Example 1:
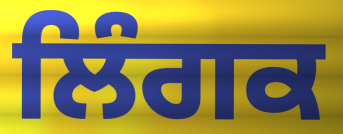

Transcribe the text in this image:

ਲਿੰਗਕ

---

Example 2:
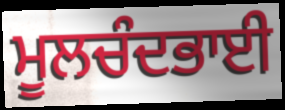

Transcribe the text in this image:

ਮੂਲਚੰਦਭਾਈ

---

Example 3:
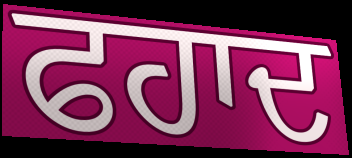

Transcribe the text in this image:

ਫਹਾਦ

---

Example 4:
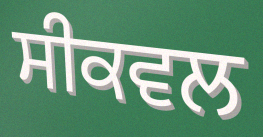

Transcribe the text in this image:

ਸੀਕਵਲ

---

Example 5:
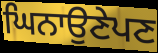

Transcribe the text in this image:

ਘਿਨਾਉਣੇਪਣ